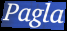
Pagla